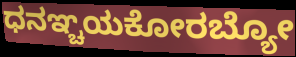
ಧನಞ್ಚಯಕೋರಬ್ಯೋ